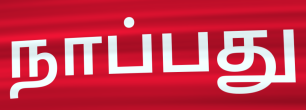
நாப்பது